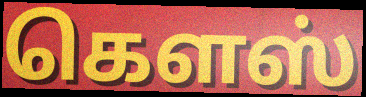
கௌஸ்